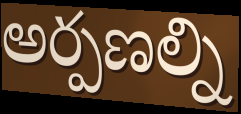
అర్పణల్ని